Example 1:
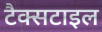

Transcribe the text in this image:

टैक्सटाइल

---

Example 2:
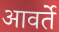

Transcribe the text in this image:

आवर्ते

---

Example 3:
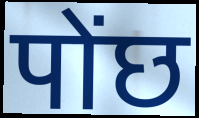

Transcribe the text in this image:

पोंछ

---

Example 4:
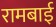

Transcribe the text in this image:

रामबाई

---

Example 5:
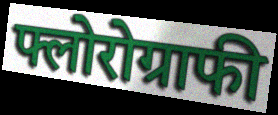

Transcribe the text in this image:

फ्लोरोग्राफी